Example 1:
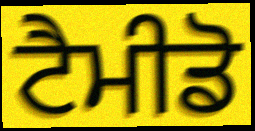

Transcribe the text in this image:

ਟੈਮੀਡੋ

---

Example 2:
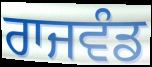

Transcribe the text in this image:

ਰਾਜਵੰਡ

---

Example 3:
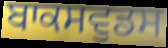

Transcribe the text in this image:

ਬਾਕਸਵੁਡਸ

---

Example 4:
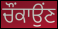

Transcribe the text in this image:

ਚੌਂਕਾਉਂਣ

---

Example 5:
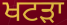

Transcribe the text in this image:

ਖਟੜਾ